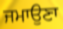
ਜਮਾਉਣਾ